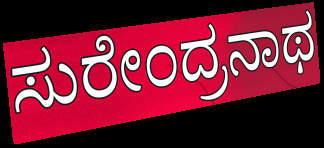
ಸುರೇಂದ್ರನಾಥ